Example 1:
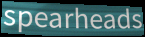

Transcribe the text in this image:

spearheads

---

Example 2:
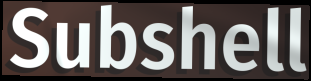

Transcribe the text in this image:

Subshell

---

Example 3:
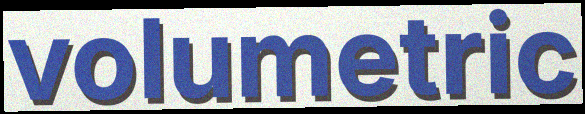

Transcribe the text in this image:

volumetric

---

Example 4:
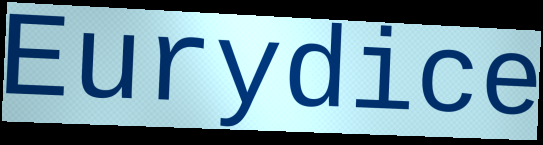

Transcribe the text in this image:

Eurydice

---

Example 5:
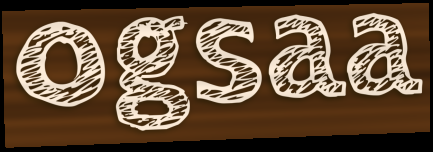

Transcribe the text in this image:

ogsaa